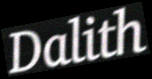
Dalith